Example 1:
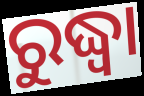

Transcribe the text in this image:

ରୁଦ୍ଧ୍ୱା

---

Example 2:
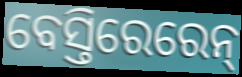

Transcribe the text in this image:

ବେସ୍ତିରେରେନ୍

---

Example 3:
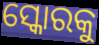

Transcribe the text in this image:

ସ୍କୋରକୁ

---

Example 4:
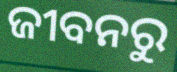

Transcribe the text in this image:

ଜୀବନରୁ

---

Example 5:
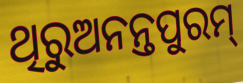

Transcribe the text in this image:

ଥିରୁଅନନ୍ତପୁରମ୍